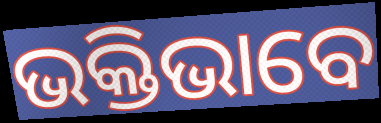
ଭକ୍ତିଭାବେ